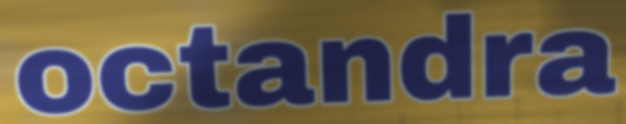
octandra